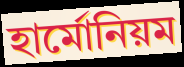
হার্মোনিয়ম